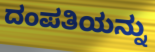
ದಂಪತಿಯನ್ನು